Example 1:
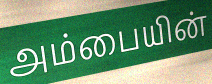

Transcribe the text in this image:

அம்பையின்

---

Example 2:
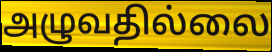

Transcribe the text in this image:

அழுவதில்லை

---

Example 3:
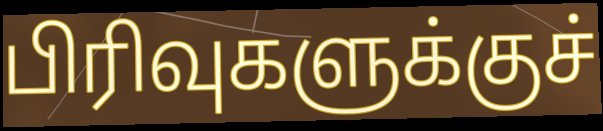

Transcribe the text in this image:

பிரிவுகளுக்குச்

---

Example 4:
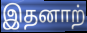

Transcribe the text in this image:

இதனாற்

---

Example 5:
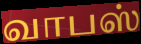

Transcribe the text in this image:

வாபஸ்